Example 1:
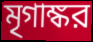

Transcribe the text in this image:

মৃগাঙ্কর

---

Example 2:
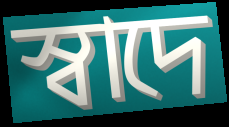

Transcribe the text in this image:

স্বাদে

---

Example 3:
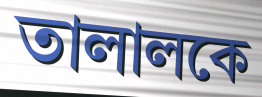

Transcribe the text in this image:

তালালকে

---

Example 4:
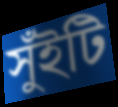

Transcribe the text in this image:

সুঁইটি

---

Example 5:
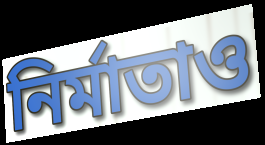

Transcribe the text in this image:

নির্মাতাও